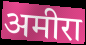
अमीरा